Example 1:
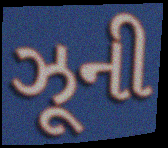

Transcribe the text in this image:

ઝૂની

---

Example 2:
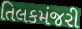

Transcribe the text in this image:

તિલકમંજરી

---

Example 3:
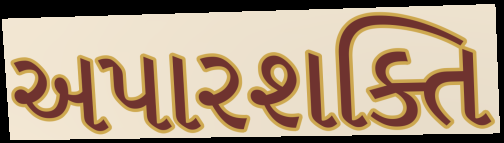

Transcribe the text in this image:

અપારશક્તિ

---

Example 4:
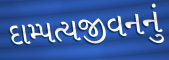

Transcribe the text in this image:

દામ્પત્યજીવનનું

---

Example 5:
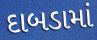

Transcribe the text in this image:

દાબડામાં